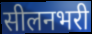
सीलनभरी